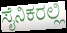
ಸೈನಿಕರಲ್ಲಿ